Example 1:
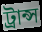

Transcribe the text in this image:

ট্রান্স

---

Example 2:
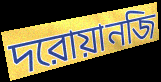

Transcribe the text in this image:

দরোয়ানজি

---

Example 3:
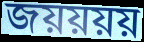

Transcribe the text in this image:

জয়য়য়য়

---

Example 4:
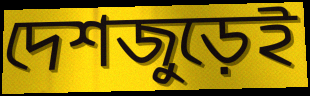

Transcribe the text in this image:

দেশজুড়েই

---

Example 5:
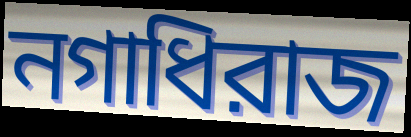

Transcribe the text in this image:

নগাধিরাজ